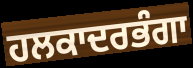
ਹਲਕਾਦਰਭੰਗਾ